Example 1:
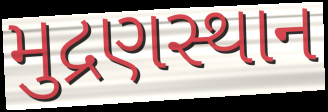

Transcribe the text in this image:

મુદ્રણસ્થાન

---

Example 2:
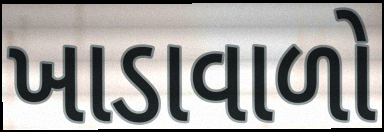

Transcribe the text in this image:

ખાડાવાળો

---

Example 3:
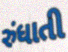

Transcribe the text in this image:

રુંધાતી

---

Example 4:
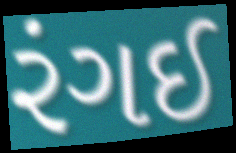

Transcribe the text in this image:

રંગઈ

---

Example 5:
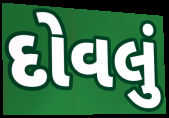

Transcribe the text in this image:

દોવલું